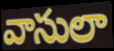
వాసులా